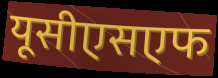
यूसीएसएफ